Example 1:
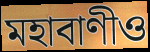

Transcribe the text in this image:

মহাবাণীও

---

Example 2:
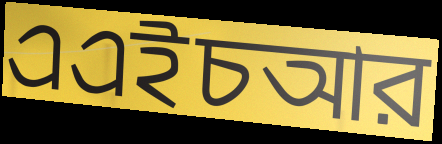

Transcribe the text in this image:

এএইচআর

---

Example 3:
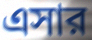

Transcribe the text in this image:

এসার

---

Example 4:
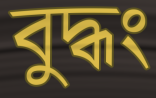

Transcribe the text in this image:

বুদ্ধং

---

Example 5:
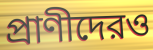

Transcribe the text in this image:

প্রাণীদেরও